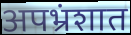
अपभ्रंशात